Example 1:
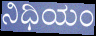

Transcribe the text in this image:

ನಿಧಿಯಂ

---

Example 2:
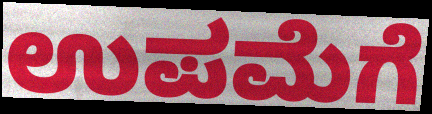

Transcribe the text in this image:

ಉಪಮೆಗೆ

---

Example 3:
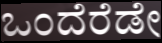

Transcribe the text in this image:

ಒಂದೆರೆಡೇ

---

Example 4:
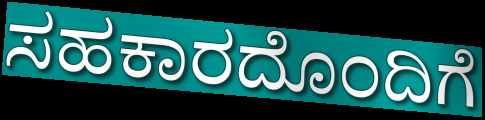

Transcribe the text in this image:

ಸಹಕಾರದೊಂದಿಗೆ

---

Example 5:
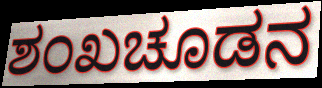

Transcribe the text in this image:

ಶಂಖಚೂಡನ